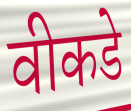
वीकडे